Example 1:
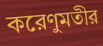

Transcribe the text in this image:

করেণুমতীর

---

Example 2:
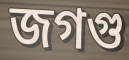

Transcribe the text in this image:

জগগু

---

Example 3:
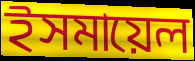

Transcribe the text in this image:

ইসমায়েল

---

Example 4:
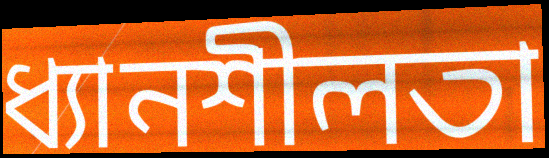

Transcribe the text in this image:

ধ্যানশীলতা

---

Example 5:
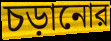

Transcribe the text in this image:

চড়ানোর